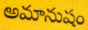
అమానుషం